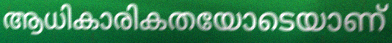
ആധികാരികതയോടെയാണ്